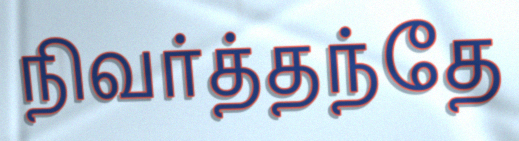
நிவர்த்தந்தே